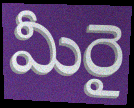
మీరై